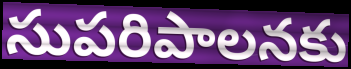
సుపరిపాలనకు